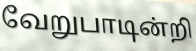
வேறுபாடின்றி